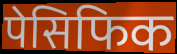
पेसिफिक